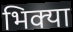
भिक्या